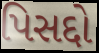
પિસદ્દો